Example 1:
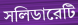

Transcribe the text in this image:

সলিডারেটি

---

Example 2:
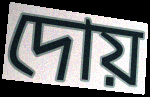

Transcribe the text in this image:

দোয়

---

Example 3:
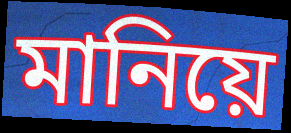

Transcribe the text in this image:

মানিয়ে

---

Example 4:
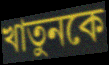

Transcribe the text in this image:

খাতুনকে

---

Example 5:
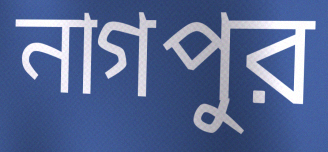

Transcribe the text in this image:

নাগপুর